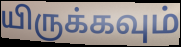
யிருக்கவும்